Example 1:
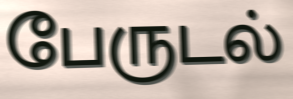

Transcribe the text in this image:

பேருடல்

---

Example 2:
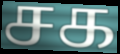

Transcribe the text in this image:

சக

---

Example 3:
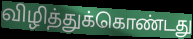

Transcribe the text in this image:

விழித்துக்கொண்டது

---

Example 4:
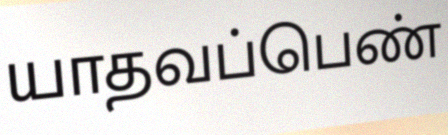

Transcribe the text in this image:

யாதவப்பெண்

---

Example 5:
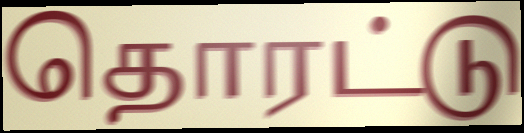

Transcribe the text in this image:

தொரட்டு